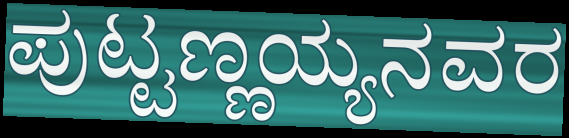
ಪುಟ್ಟಣ್ಣಯ್ಯನವರ